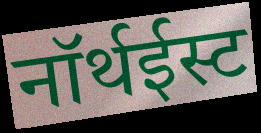
नॉर्थईस्ट